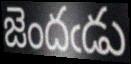
జెందఁడు